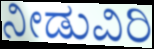
ನೀಡುವಿರಿ